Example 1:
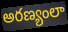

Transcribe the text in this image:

అరణ్యంలా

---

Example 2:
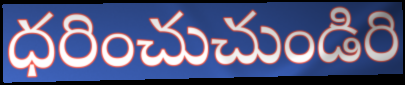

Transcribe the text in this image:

ధరించుచుండిరి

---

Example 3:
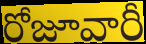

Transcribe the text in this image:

రోజూవారీ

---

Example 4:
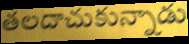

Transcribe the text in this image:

తలదాచుకున్నాడు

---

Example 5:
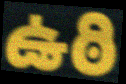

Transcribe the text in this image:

ఉఠి